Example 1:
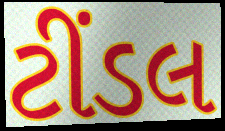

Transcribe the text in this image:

ટીંડલ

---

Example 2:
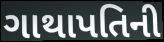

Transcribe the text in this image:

ગાથાપતિની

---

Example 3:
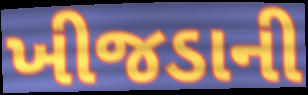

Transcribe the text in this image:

ખીજડાની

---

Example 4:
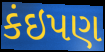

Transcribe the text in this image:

કંઇપણ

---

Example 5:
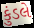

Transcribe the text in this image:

કુંડલે